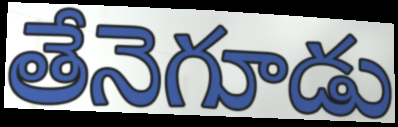
తేనెగూడు